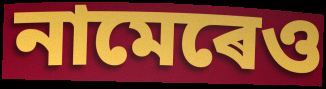
নামেৰেও